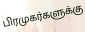
பிரமுகர்களுக்கு